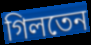
গিলতেন